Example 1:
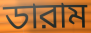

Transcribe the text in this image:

ডারাম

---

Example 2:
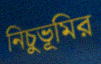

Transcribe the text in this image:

নিচুভূমির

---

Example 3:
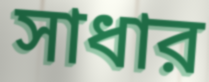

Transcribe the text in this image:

সাধার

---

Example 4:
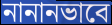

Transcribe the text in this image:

নানানভাবে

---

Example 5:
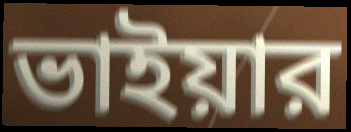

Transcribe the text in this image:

ভাইয়ার